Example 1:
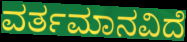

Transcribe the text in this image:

ವರ್ತಮಾನವಿದೆ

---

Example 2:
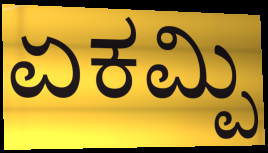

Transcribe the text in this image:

ಏಕಮ್ಪಿ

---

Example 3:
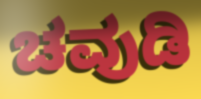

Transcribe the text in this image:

ಚವುಡಿ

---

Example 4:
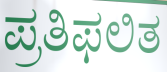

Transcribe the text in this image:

ಪ್ರತಿಫಲಿತ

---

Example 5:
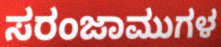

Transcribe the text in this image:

ಸರಂಜಾಮುಗಳ